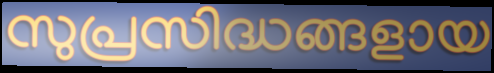
സുപ്രസിദ്ധങ്ങളായ